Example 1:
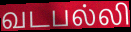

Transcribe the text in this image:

வடபல்லி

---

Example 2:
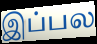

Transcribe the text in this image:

இப்பல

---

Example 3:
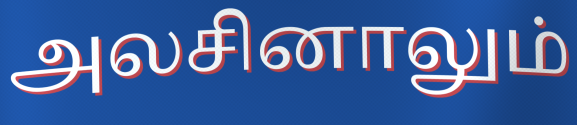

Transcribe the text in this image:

அலசினாலும்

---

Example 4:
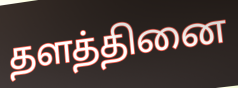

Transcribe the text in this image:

தளத்தினை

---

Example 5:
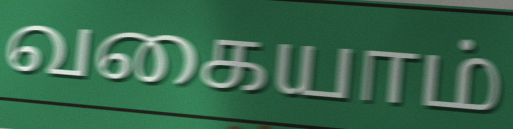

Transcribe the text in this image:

வகையாம்